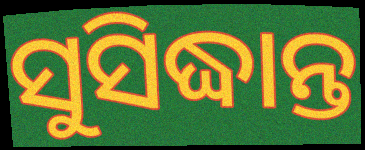
ସୁସିଦ୍ଧାନ୍ତ